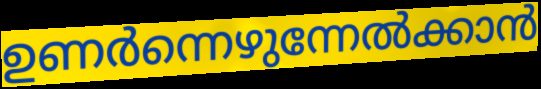
ഉണർന്നെഴുന്നേൽക്കാൻ